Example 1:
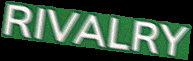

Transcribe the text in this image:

RIVALRY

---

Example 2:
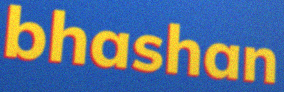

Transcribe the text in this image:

bhashan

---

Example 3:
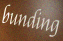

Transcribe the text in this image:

bunding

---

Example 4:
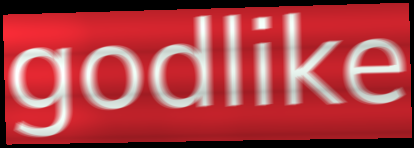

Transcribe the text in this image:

godlike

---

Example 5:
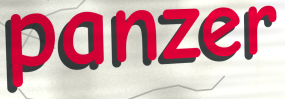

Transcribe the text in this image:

panzer